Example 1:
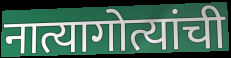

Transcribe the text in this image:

नात्यागोत्यांची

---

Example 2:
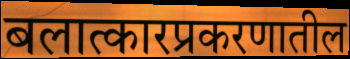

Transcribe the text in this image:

बलात्कारप्रकरणातील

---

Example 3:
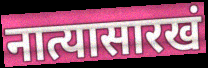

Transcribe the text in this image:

नात्यासारखं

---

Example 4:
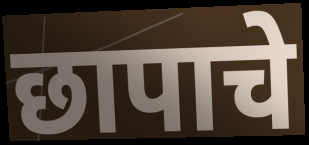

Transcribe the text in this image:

छापाचे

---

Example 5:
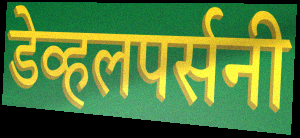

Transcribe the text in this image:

डेव्हलपर्सनी